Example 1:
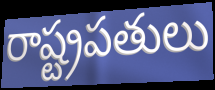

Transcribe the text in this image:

రాష్ట్రపతులు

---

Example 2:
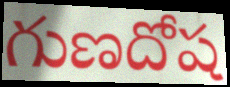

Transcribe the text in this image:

గుణదోష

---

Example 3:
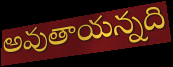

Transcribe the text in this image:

అవుతాయన్నది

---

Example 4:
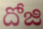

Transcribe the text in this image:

దోజి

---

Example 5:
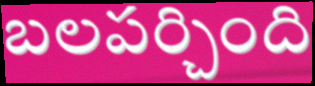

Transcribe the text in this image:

బలపర్చింది